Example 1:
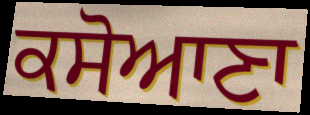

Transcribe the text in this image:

ਕਸੋਆਣਾ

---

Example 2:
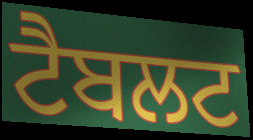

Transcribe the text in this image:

ਟੈਬਲਟ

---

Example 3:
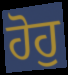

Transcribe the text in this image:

ਹੋਹੁ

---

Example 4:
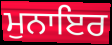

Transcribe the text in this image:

ਮੁਨਾਇਰ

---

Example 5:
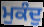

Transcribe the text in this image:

ਮੁਕੰਦੁ